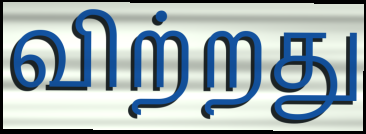
விற்றது